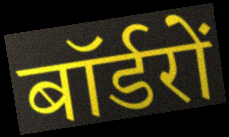
बॉर्डरों